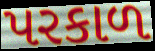
પરકાળ